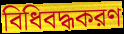
বিধিবদ্ধকরণ